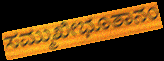
ಸಮ್ಮುಖೀಭೂತಾನಂ